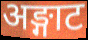
अङ्गाट